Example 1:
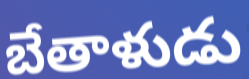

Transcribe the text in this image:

బేతాళుడు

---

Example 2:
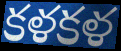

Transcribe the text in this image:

కళకళ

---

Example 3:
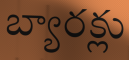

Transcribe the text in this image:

బ్యారక్లు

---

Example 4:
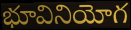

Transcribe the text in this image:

భూవినియోగ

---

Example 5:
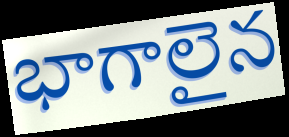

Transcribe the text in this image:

భాగాలైన